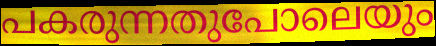
പകരുന്നതുപോലെയും